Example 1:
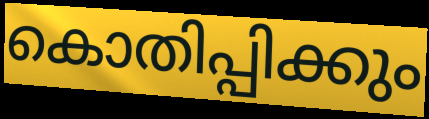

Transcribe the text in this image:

കൊതിപ്പിക്കും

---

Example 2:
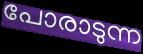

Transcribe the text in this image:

പോരാടുന്ന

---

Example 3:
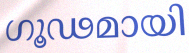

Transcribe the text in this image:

ഗൂഢമായി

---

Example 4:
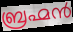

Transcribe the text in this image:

ബ്രഹ്മൻ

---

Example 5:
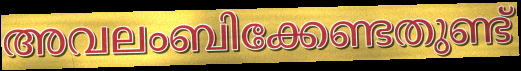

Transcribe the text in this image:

അവലംബിക്കേണ്ടതുണ്ട്